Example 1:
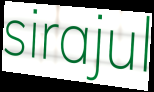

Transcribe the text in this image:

sirajul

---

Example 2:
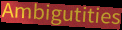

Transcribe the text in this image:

Ambigutities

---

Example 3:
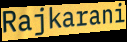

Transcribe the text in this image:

Rajkarani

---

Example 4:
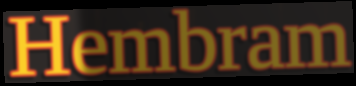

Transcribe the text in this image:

Hembram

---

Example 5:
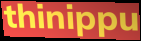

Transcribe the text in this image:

thinippu